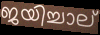
ജയിച്ചാല്